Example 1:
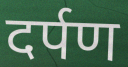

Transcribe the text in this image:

दर्पण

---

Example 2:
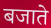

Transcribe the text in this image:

बजाते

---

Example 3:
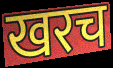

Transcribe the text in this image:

खरच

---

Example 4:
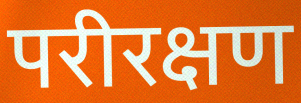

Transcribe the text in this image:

परीरक्षण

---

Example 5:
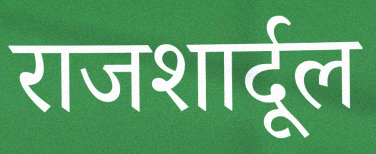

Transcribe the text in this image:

राजशार्दूल